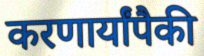
करणार्यांपैकी